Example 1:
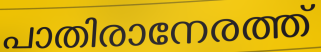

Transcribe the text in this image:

പാതിരാനേരത്ത്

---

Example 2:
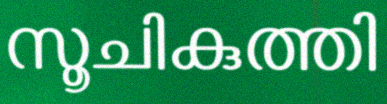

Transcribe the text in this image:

സൂചികുത്തി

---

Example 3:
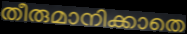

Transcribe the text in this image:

തീരുമാനിക്കാതെ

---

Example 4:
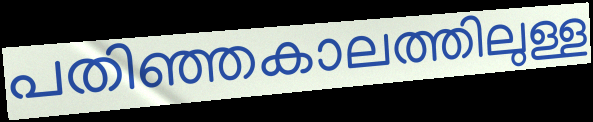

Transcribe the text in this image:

പതിഞ്ഞകാലത്തിലുള്ള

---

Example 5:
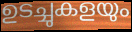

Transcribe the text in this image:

ഉടച്ചുകളയും